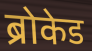
ब्रोकेड